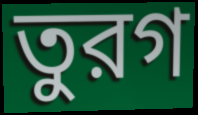
তুরগ